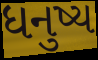
ધનુષ્ય